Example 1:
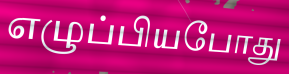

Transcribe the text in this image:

எழுப்பியபோது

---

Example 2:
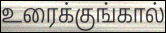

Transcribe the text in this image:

உரைக்குங்கால்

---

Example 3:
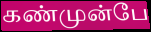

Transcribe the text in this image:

கண்முன்பே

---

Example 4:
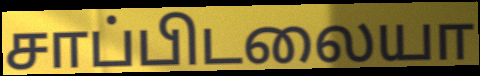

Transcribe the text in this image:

சாப்பிடலையா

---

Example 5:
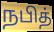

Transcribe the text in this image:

நபித்